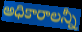
అధికారాలన్నీ